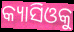
କ୍ୟାସିଓକୁ